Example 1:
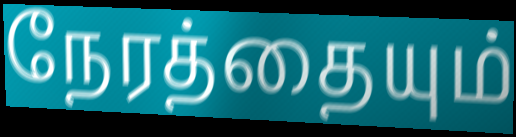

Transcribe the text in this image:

நேரத்தையும்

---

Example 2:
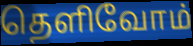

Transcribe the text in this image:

தெளிவோம்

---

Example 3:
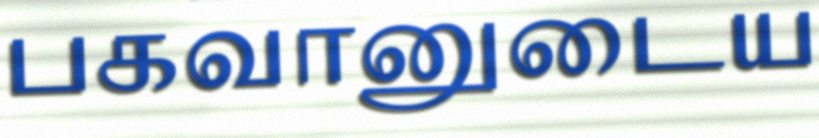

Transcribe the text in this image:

பகவானுடைய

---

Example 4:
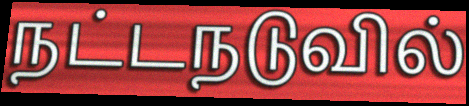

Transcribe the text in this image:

நட்டநடுவில்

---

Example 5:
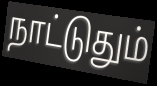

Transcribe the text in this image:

நாட்டுதும்